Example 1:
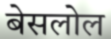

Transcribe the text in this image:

बेसलोल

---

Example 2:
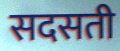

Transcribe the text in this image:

सदसती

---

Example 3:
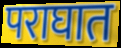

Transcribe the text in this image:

पराघात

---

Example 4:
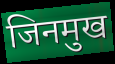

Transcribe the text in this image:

जिनमुख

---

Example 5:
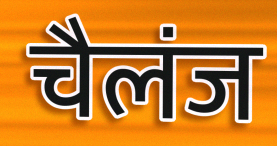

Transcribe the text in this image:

चैलंज